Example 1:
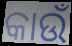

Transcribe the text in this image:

କାଉଁ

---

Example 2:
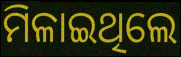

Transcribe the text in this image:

ମିଳାଇଥିଲେ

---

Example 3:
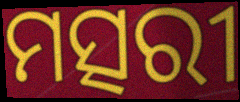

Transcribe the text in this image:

ମତ୍ସରୀ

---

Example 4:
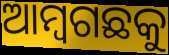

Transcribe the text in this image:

ଆମ୍ବଗଛକୁ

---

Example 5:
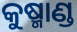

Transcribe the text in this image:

କୁଷ୍ମାଣ୍ଡ